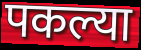
पकल्या